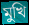
মুখি